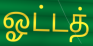
ஓட்டத்